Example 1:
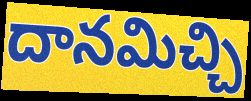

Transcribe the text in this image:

దానమిచ్చి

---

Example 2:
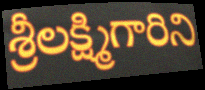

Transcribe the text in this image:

శ్రీలక్ష్మిగారిని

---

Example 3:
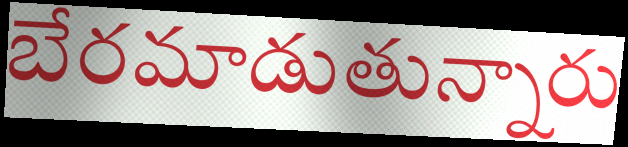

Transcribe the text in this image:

బేరమాడుతున్నారు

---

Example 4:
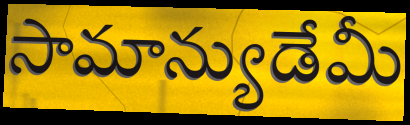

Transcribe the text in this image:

సామాన్యుడేమీ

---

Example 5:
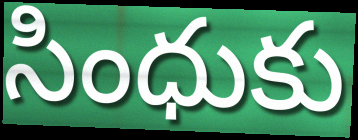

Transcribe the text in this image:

సింధుకు